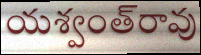
యశ్వంత్‌రావు